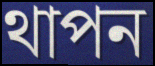
থাপন